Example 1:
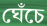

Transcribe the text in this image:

ঘেঁচে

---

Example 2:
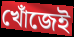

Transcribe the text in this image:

খোঁজেই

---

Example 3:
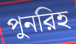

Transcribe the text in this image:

পুনরিহ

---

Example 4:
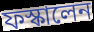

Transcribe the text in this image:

ফস্কালেন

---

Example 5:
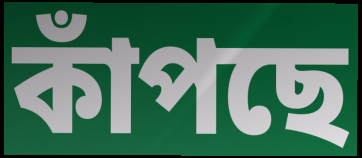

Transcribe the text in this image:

কাঁপছে